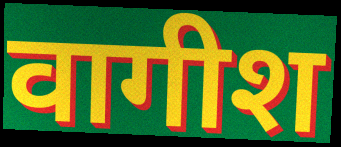
वागीश